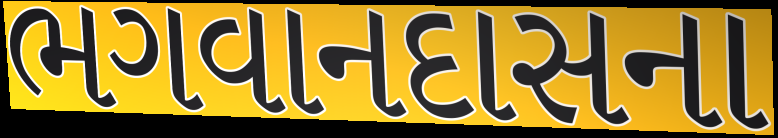
ભગવાનદાસના